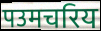
पउमचरिय